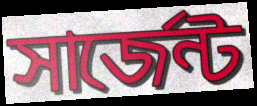
সার্জেন্ট